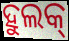
ହୁଲକ୍